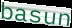
basun